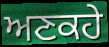
ਅਣਕਹੇ